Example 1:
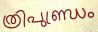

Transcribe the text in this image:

ത്രിപുണ്ഡ്രം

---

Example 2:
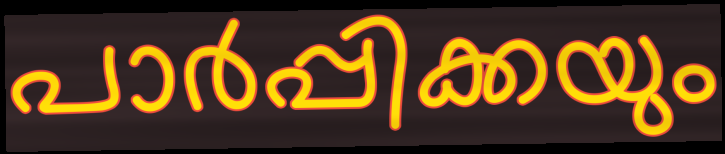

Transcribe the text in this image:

പാർപ്പിക്കയും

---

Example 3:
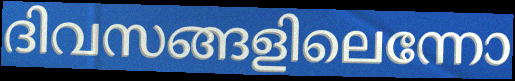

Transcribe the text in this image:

ദിവസങ്ങളിലെന്നോ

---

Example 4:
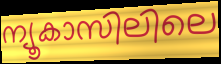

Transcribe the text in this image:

ന്യൂകാസിലിലെ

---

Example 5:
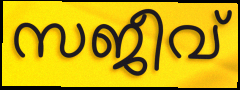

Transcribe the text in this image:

സജീവ്